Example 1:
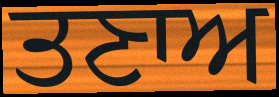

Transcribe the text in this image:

ਤਣਾਅ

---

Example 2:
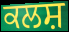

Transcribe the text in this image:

ਕਲਸ਼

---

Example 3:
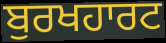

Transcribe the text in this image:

ਬੁਰਖਹਾਰਟ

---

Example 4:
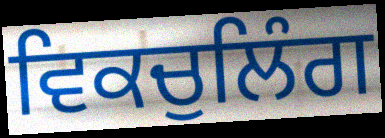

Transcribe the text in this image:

ਵਿਕਚੁਲਿੰਗ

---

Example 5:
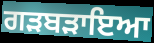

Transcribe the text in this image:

ਗੜਬੜਾਇਆ